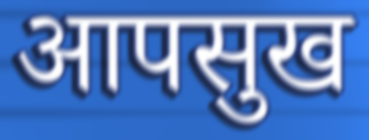
आपसुख